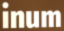
inum